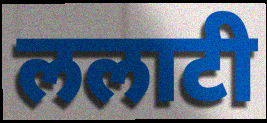
ललाटी